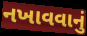
નખાવવાનું